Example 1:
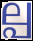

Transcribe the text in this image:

ല്പ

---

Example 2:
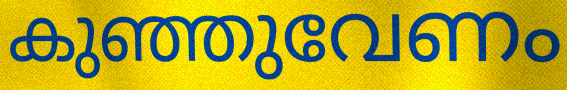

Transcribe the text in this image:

കുഞ്ഞുവേണം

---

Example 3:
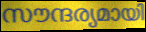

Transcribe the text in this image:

സൗന്ദര്യമായി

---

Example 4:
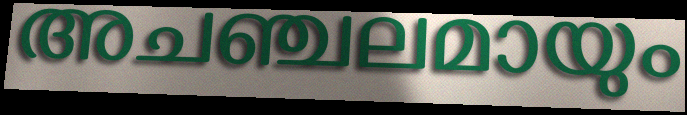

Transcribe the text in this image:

അചഞ്ചലമായും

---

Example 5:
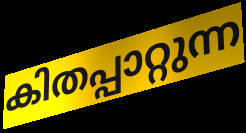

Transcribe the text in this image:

കിതപ്പാറ്റുന്ന